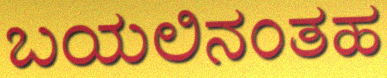
ಬಯಲಿನಂತಹ